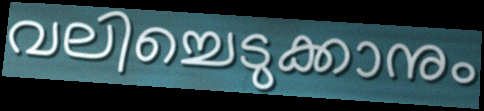
വലിച്ചെടുക്കാനും